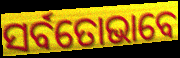
ସର୍ବତୋଭାବେ